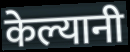
केल्यानी